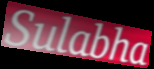
Sulabha